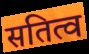
सतित्व